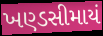
ખણ્ડસીમાયં